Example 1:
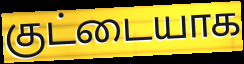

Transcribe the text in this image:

குட்டையாக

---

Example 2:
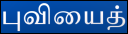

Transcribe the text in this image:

புவியைத்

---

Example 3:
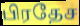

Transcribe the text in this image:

பிரதேச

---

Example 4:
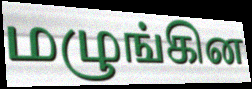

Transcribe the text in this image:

மழுங்கின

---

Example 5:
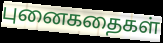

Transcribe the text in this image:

புனைகதைகள்